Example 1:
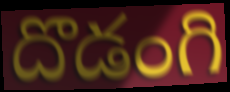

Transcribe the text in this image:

దొడంగి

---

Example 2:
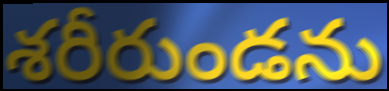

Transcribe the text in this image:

శరీరుండను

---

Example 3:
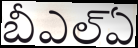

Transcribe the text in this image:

బీఎల్ఏ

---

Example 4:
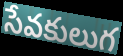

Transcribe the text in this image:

సేవకులుగ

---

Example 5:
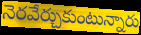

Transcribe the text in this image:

నెరవేర్చుకుంటున్నారు